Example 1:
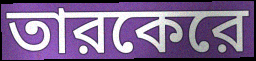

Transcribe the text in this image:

তারকেরে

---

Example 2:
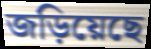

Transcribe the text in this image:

জড়িয়েছে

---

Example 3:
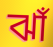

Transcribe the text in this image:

ঝাঁ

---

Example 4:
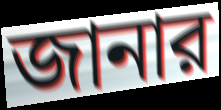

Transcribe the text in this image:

জানার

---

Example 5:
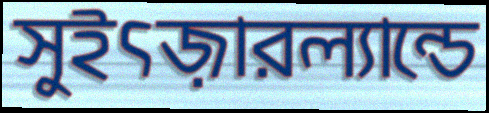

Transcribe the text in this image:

সুইৎজ়ারল্যান্ডে